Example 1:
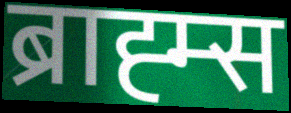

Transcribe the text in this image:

ब्राह्म्स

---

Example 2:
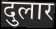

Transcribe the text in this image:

दुलार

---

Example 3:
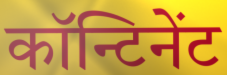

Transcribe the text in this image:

कॉन्टिनेंट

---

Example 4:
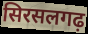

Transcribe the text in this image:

सिरसलगढ़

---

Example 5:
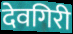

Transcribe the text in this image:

देवगिरी